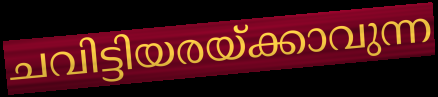
ചവിട്ടിയരയ്ക്കാവുന്ന